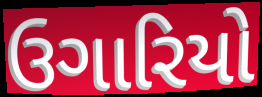
ઉગારિયો